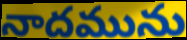
నాదమును